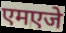
एमएजे